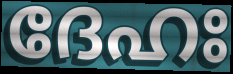
ദേഹഃ